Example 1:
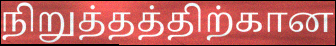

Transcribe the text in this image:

நிறுத்தத்திற்கான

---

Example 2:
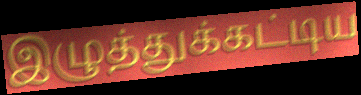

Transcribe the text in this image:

இழுத்துக்கட்டிய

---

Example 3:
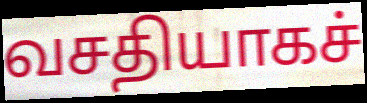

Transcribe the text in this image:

வசதியாகச்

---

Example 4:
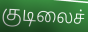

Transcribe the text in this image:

குடிலைச்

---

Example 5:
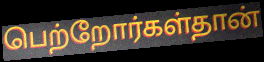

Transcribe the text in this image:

பெற்றோர்கள்தான்